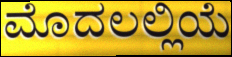
ಮೊದಲಲ್ಲಿಯೆ